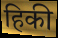
हिकी